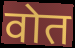
वोत